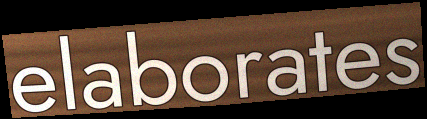
elaborates